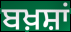
ਬਖ਼ਸ਼ਾਂ